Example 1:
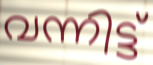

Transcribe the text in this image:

വന്നിട്ട്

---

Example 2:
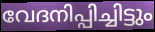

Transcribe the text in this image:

വേദനിപ്പിച്ചിട്ടും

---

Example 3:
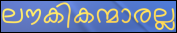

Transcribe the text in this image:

ലൗകികന്മാരല്ല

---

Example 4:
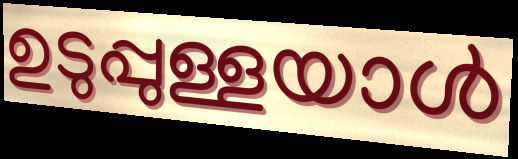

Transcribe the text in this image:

ഉടുപ്പുള്ളയാൾ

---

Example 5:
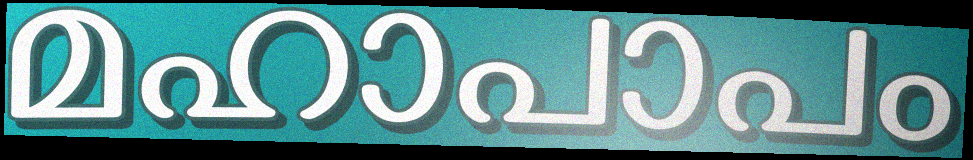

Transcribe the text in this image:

മഹാപാപം